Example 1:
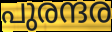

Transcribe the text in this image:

പുരന്ദര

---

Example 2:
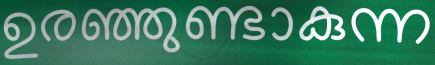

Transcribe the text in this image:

ഉരഞ്ഞുണ്ടാകുന്ന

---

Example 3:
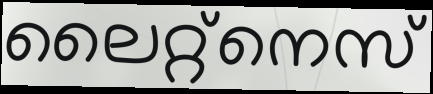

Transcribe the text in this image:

ലൈറ്റ്നെസ്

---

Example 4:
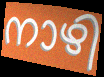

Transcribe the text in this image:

നാഴി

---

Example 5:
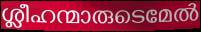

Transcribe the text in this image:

ശ്ലീഹന്മാരുടെമേൽ